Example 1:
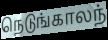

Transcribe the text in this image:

நெடுங்காலந்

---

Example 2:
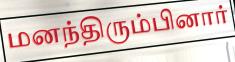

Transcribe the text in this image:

மனந்திரும்பினார்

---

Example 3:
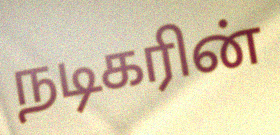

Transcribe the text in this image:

நடிகரின்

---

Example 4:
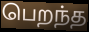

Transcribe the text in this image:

பெறந்த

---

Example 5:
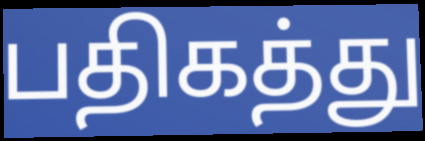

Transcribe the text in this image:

பதிகத்து